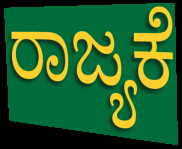
ರಾಜ್ಯಕೆ